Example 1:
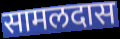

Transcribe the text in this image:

सामलदास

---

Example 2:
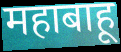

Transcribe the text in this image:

महाबाहू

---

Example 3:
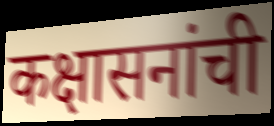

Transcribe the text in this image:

कक्षासनांची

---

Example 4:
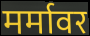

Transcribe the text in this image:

मर्मावर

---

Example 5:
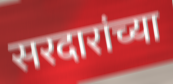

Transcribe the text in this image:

सरदारांच्या